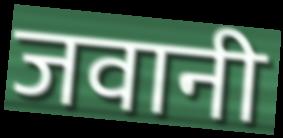
जवानी